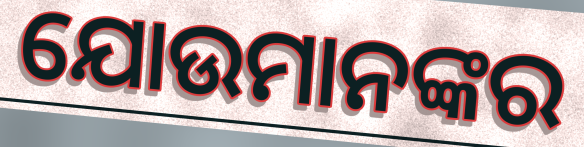
ଯୋଉମାନଙ୍କର